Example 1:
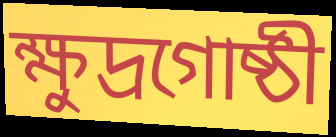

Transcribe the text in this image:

ক্ষুদ্রগোষ্ঠী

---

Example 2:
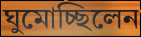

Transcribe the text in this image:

ঘুমোচ্ছিলেন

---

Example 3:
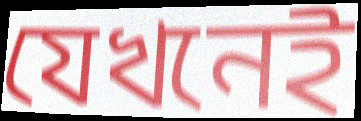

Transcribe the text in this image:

যেখনেই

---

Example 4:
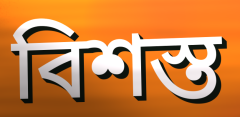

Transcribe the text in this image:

বিশস্ত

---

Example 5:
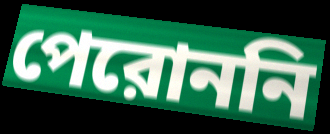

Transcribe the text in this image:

পেরোননি